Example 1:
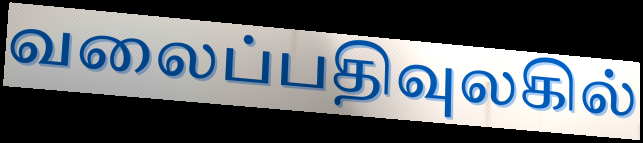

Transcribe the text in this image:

வலைப்பதிவுலகில்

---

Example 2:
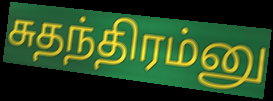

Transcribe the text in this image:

சுதந்திரம்னு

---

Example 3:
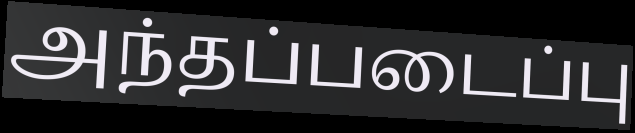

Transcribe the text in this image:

அந்தப்படைப்பு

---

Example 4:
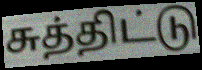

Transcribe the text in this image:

சுத்திட்டு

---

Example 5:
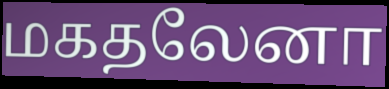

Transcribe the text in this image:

மகதலேனா